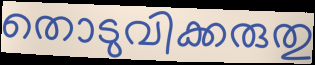
തൊടുവിക്കരുതു